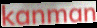
kanman